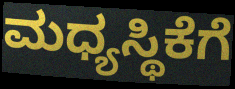
ಮಧ್ಯಸ್ಥಿಕೆಗೆ